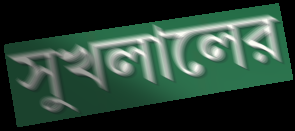
সুখলালের